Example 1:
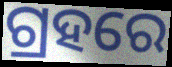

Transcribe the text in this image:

ଗ୍ରହରେ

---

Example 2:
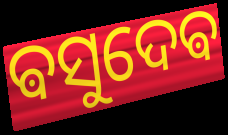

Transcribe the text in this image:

ଵସୁଦେଵ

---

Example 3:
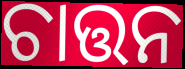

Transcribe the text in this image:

ଚାତ୍ତନ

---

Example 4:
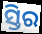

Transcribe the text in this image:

ସ୍ତିର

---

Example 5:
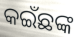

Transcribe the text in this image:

କଇଁଛଙ୍କ